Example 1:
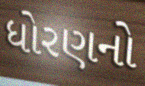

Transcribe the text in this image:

ધોરણનો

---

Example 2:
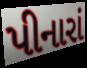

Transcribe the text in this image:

પીનારાં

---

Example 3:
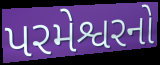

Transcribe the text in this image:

પરમેશ્વરનો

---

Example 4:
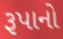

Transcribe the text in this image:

રૂપાનો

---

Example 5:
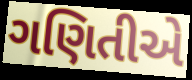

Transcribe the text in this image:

ગણિતીએ